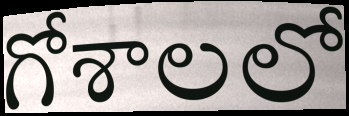
గోశాలలో